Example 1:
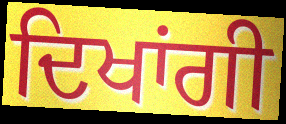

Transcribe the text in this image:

ਦਿਖਾਂਗੀ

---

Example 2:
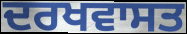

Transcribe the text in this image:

ਦਰਖਵਾਸਤ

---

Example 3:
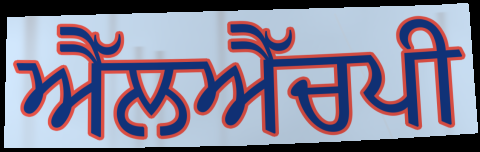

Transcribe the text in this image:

ਐੱਲਐੱਚਪੀ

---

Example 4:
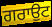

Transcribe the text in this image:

ਗਰਾਉਟ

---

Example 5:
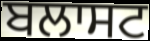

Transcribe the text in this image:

ਬਲਾਸਟ